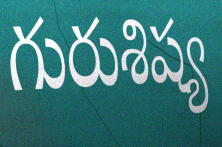
గురుశిష్య